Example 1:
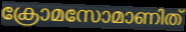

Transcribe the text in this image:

ക്രോമസോമാണിത്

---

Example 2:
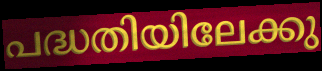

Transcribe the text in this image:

പദ്ധതിയിലേക്കു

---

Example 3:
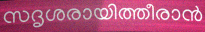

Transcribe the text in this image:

സദൃശരായിത്തീരാൻ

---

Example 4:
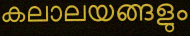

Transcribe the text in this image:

കലാലയങ്ങളും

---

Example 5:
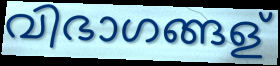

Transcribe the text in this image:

വിഭാഗങ്ങള്